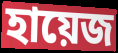
হায়েজ